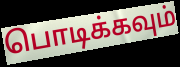
பொடிக்கவும்